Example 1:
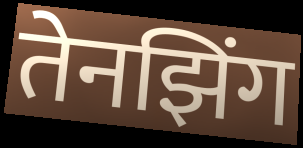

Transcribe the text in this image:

तेनझिंग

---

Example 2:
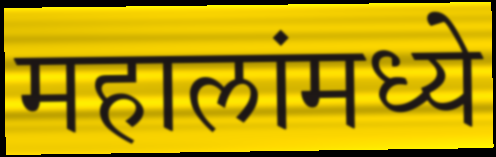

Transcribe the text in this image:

महालांमध्ये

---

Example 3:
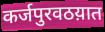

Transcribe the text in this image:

कर्जपुरवठय़ात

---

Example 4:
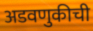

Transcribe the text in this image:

अडवणुकीची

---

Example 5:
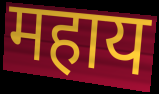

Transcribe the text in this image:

महाय